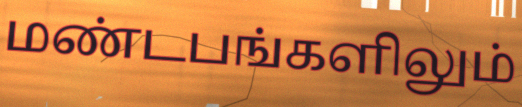
மண்டபங்களிலும்